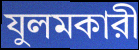
যুলমকারী